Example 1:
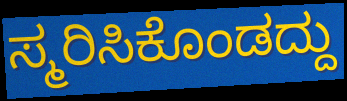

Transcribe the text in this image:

ಸ್ಮರಿಸಿಕೊಂಡದ್ದು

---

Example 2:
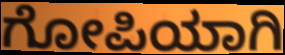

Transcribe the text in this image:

ಗೋಪಿಯಾಗಿ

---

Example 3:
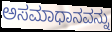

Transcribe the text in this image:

ಅಸಮಾಧಾನವನ್ನು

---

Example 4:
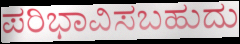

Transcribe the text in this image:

ಪರಿಭಾವಿಸಬಹುದು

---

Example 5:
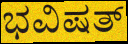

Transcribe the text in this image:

ಭವಿಷತ್